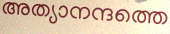
അത്യാനന്ദത്തെ